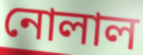
নোলাল